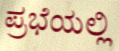
ಪ್ರಭೆಯಲ್ಲಿ